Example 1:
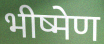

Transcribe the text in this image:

भीष्मेण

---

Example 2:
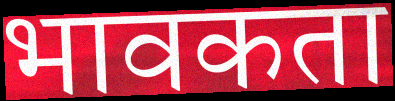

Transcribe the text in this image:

भावकता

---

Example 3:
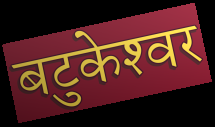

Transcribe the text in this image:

बटुकेश्‍वर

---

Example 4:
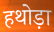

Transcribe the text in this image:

हथोड़ा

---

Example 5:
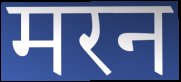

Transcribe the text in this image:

मरन